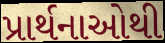
પ્રાર્થનાઓથી